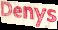
Denys